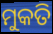
ମୁକତି